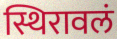
स्थिरावलं